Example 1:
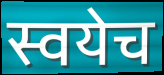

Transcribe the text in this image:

स्वयेच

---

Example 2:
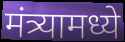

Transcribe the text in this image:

मंत्र्यामध्ये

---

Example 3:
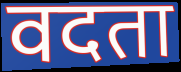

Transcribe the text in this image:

वदता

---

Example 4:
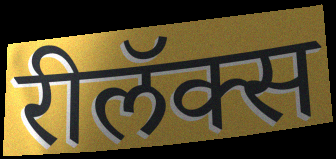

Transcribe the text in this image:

रीलॅक्स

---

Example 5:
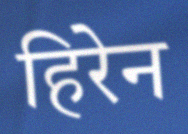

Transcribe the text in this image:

हिरेन